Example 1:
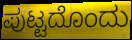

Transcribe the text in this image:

ಪುಟ್ಟದೊಂದು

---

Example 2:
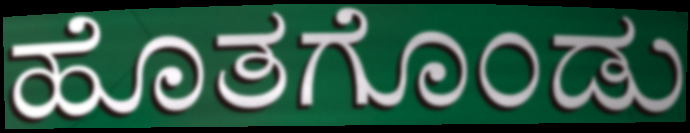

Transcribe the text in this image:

ಹೊತಗೊಂಡು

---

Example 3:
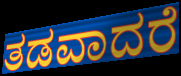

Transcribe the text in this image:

ತಡವಾದರೆ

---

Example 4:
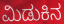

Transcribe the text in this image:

ಮಿಡುಕಿನ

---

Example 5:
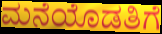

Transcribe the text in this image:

ಮನೆಯೊಡತಿಗೆ